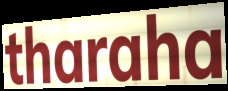
tharaha